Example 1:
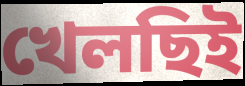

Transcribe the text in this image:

খেলছিই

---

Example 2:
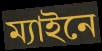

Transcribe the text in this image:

ম্যাইনে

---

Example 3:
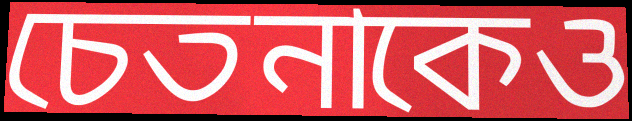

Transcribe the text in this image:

চেতনাকেও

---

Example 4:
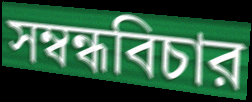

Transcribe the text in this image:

সম্বন্ধবিচার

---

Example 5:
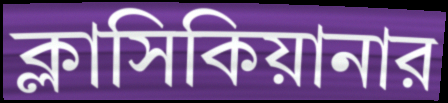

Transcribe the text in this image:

ক্লাসিকিয়ানার